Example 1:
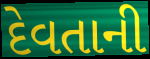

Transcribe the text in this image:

દેવતાની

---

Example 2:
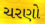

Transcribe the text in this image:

ચરણો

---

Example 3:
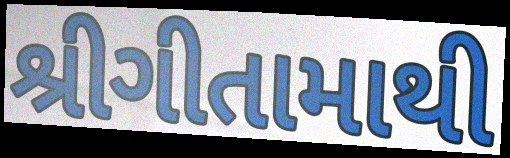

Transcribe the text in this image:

શ્રીગીતામાથી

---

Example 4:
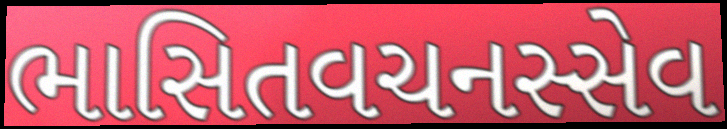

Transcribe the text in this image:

ભાસિતવચનસ્સેવ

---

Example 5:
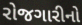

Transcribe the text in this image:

રોજગારીનો